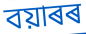
বয়াৰৰ